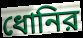
ধোনির